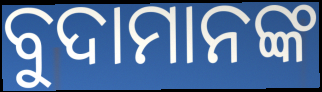
ବୁଦାମାନଙ୍କ